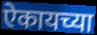
ऐकायच्या